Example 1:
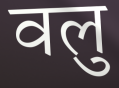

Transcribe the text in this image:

वलु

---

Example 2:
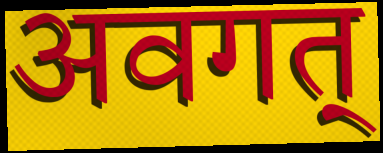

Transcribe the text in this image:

अवगत्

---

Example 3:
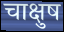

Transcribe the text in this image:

चाक्षुष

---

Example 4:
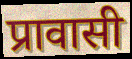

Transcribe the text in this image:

प्रावासी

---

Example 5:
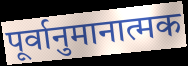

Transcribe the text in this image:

पूर्वानुमानात्मक